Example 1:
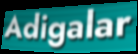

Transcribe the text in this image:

Adigalar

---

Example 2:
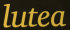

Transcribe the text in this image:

lutea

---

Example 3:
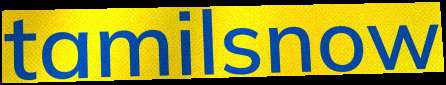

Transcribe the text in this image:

tamilsnow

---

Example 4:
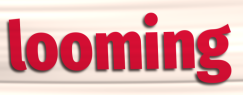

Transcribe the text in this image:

looming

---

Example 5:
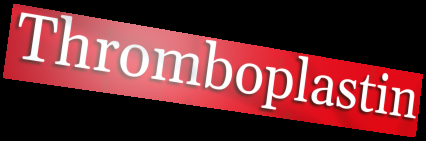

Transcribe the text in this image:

Thromboplastin